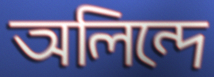
অলিন্দে